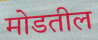
मोडतील